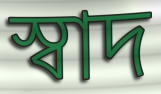
স্বাদ